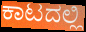
ಕಾಟದಲ್ಲಿ